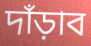
দাঁড়াব